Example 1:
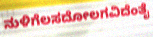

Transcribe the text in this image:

ನುಳಿಗೆಲಸದೋಲಗವಿದೆಂತೈ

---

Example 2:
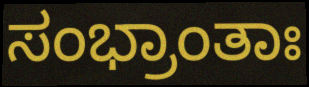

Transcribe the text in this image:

ಸಂಭ್ರಾಂತಾಃ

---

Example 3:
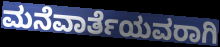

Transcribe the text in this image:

ಮನೆವಾರ್ತೆಯವರಾಗಿ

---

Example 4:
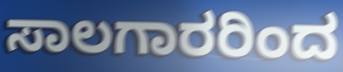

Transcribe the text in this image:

ಸಾಲಗಾರರಿಂದ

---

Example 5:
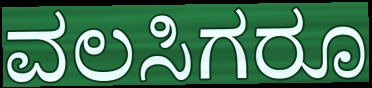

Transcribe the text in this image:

ವಲಸಿಗರೂ